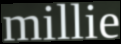
millie